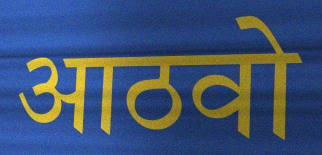
आठवो